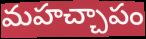
మహచ్చాపం